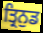
ਤ੍ਰਿਨੁਡ